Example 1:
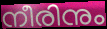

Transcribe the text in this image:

നീരിനും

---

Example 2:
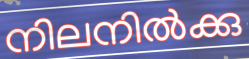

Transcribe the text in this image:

നിലനിൽക്കു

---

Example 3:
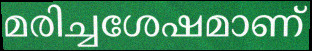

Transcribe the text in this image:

മരിച്ചശേഷമാണ്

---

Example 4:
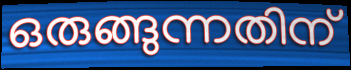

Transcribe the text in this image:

ഒരുങ്ങുന്നതിന്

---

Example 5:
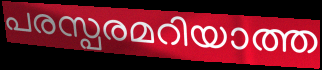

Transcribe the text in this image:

പരസ്പരമറിയാത്ത